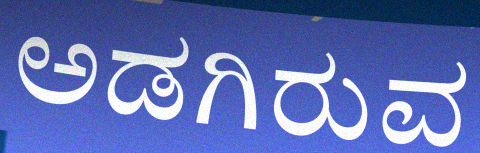
ಅಡಗಿರುವ